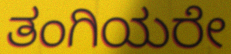
ತಂಗಿಯರೇ